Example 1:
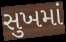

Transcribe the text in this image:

સુખમાં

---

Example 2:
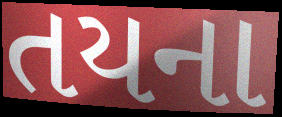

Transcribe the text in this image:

તયના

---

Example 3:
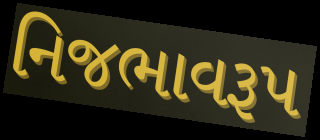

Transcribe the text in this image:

નિજભાવરૂપ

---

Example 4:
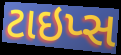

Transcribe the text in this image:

ટાઇપ્સ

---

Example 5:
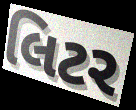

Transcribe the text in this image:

લિટર